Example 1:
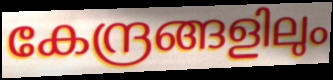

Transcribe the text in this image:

കേന്ദ്രങ്ങളിലും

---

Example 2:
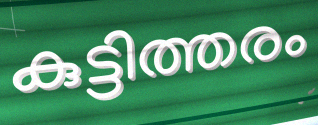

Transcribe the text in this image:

കുട്ടിത്തരം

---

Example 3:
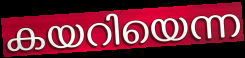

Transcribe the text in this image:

കയറിയെന്ന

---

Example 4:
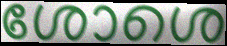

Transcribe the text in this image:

ശോശെ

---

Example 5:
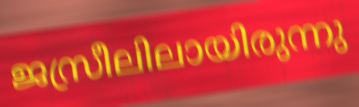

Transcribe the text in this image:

ജസ്രീലിലായിരുന്നു